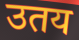
उतय